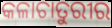
କଳାଚାତୁରୀର